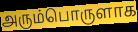
அரும்பொருளாக